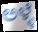
ಅಳ್ಳೆ